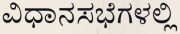
ವಿಧಾನಸಭೆಗಳಲ್ಲಿ